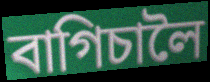
বাগিচালৈ